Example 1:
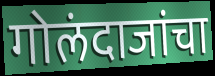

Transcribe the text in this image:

गोलंदाजांचा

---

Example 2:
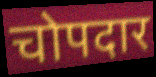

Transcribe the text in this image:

चोपदार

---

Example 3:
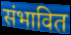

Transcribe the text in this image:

संभावित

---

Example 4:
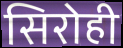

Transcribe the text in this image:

सिरोही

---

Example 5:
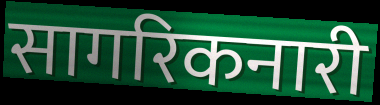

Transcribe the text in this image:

सागरिकनारी